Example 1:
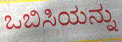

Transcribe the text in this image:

ಒಬಿಸಿಯನ್ನು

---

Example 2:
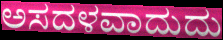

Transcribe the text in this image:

ಅಸದಳವಾದುದು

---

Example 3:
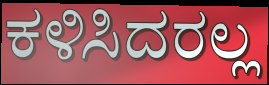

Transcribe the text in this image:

ಕಳಿಸಿದರಲ್ಲ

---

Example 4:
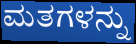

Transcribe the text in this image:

ಮತಗಳನ್ನು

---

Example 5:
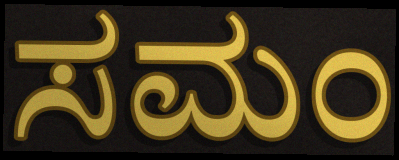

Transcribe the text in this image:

ಸಮಂ